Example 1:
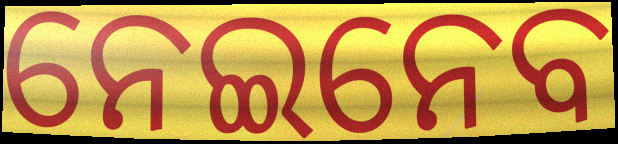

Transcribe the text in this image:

ନେଇନେବ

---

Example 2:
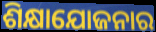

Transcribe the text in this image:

ଶିକ୍ଷାଯୋଜନାର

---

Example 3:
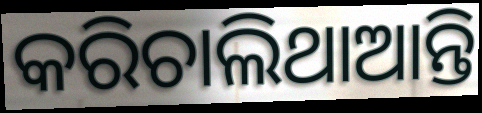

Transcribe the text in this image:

କରିଚାଲିଥାଆନ୍ତି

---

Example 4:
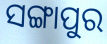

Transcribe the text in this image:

ସଙ୍ଗାପୁର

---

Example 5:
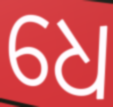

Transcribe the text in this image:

ଧେ